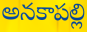
అనకాపల్లి